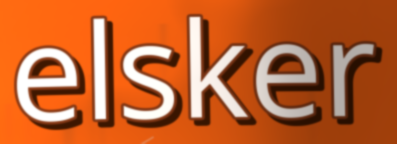
elsker